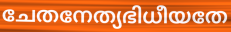
ചേതനേത്യഭിധീയതേ